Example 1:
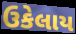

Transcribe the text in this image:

ઉકેલાય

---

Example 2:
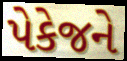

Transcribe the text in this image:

પેકેજને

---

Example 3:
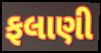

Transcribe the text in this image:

ફલાણી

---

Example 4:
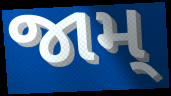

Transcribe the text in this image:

જામ્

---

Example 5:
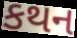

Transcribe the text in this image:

કથન